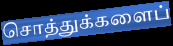
சொத்துக்களைப்